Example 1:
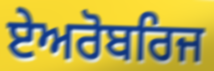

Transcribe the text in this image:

ਏਅਰੋਬਰਿਜ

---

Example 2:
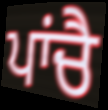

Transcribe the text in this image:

ਪਾਂਚੈ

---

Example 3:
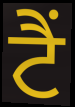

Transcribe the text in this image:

ਟੈੰ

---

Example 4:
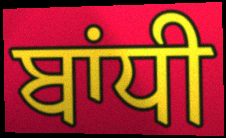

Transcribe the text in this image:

ਬਾਂਧੀ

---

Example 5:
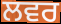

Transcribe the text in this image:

ਲਵਰ